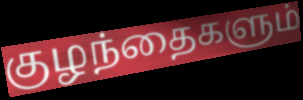
குழந்தைகளும்